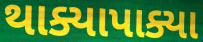
થાક્યાપાક્યા